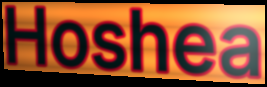
Hoshea